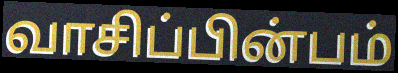
வாசிப்பின்பம்